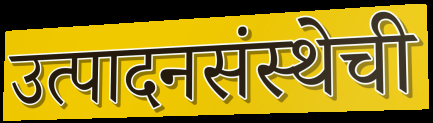
उत्पादनसंस्थेची